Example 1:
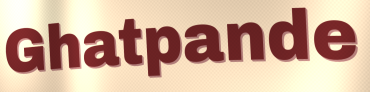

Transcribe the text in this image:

Ghatpande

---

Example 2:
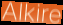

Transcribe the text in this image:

Alkire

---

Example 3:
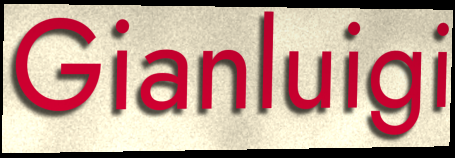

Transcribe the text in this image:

Gianluigi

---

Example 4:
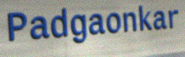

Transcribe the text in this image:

Padgaonkar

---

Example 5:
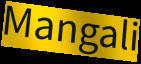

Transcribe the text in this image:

Mangali